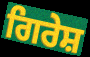
ਗਿਰੇਸ਼